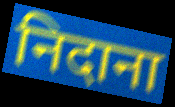
निदाना